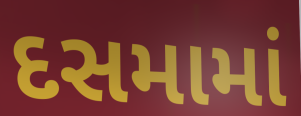
દસમામાં